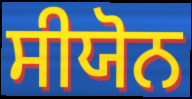
ਸੀਯੋਨ